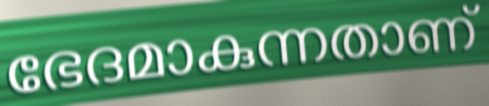
ഭേദമാകുന്നതാണ്